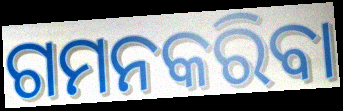
ଗମନକରିବା